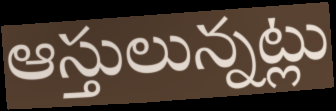
ఆస్తులున్నట్లు